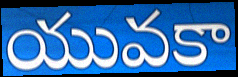
యువకా